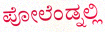
ಪೋಲೆಂಡ್ನಲ್ಲಿ